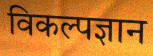
विकल्पज्ञान